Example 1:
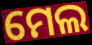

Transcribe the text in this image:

ମେଲ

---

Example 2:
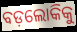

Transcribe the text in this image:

ବଡ଼ଲୋକିକୁ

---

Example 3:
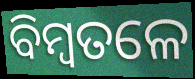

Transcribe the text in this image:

ବିମ୍ବତଳେ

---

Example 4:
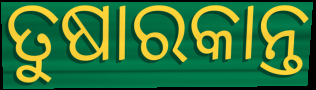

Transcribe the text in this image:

ତୁଷାରକାନ୍ତ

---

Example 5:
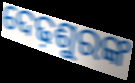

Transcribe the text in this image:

ଦେଢ଼ଶୁରଙ୍କ